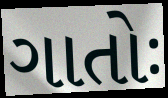
ગાતોઃ